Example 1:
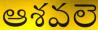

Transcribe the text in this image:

ఆశవలె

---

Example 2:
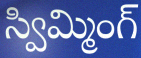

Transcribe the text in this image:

స్విమ్మింగ్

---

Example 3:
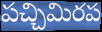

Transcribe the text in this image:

పచ్చిమిరప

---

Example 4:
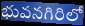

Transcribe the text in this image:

భువనగిరిలో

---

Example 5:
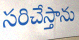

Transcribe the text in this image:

సరిచేస్తాను